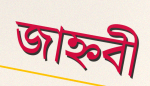
জাহ্নবী